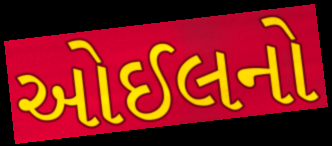
ઓઈલનો